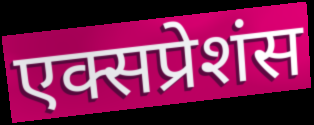
एक्सप्रेशंस